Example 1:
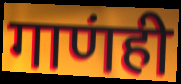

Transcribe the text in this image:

गाणंही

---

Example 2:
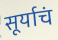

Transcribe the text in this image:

सूर्याचं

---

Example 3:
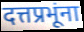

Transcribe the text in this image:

दत्तप्रभूंना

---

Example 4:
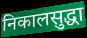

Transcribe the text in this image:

निकालसुद्धा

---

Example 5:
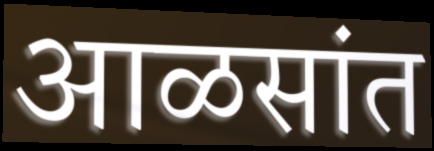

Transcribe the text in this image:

आळसांत